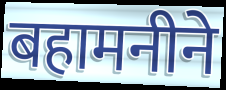
बहामनीने